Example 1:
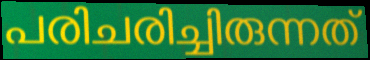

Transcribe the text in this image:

പരിചരിച്ചിരുന്നത്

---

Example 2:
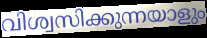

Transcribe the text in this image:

വിശ്വസിക്കുന്നയാളും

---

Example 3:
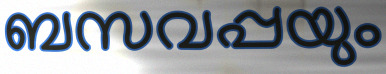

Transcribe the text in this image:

ബസവപ്പയും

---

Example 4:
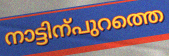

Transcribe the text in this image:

നാട്ടിന്പുറത്തെ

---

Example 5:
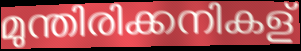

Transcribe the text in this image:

മുന്തിരിക്കനികള്